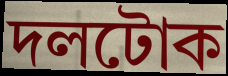
দলটোক